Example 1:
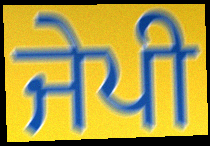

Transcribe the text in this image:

ਜੇਪੀ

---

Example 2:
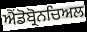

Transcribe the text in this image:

ਐਂਡੋਬ੍ਰੋਨਚਿਅਲ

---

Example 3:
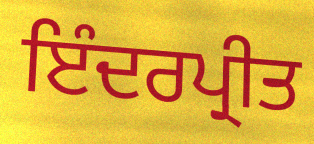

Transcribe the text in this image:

ਇੰਦਰਪ੍ਰੀਤ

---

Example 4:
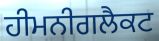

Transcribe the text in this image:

ਹੀਮਨੀਗਲੈਕਟ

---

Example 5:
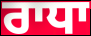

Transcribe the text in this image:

ਰਾਧਾ